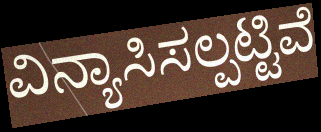
ವಿನ್ಯಾಸಿಸಲ್ಪಟ್ಟಿವೆ